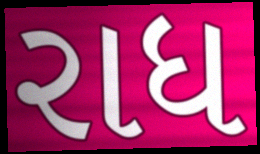
રાધ